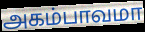
அகம்பாவமா